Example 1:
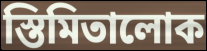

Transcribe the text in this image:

স্তিমিতালোক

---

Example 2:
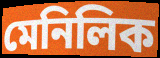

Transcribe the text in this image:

মেনিলিক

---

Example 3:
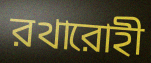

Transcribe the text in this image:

রথারোহী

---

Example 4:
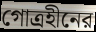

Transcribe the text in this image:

গোত্রহীনের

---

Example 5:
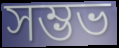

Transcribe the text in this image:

সম্ভভ